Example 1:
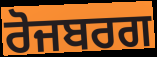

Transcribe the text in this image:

ਰੋਜਬਰਗ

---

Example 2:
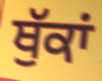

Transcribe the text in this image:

ਥੁੱਕਾਂ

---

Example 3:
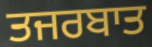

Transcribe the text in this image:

ਤਜਰਬਾਤ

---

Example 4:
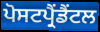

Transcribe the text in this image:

ਪੋਸਟਪ੍ਰੈਂਡੈਂਟਲ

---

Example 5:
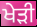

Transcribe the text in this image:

ਖੇੜੀ